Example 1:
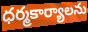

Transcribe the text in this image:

ధర్మకార్యాలను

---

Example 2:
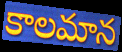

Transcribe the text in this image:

కాలమాన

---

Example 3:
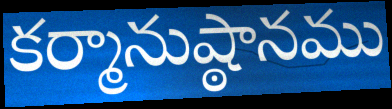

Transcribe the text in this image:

కర్మానుష్ఠానము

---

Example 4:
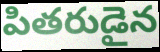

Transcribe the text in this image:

పితరుడైన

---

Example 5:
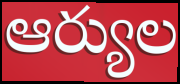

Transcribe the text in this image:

ఆర్యుల